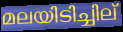
മലയിടിച്ചില്